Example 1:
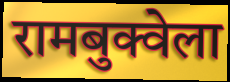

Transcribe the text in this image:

रामबुक्वेला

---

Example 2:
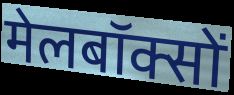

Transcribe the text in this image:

मेलबॉक्सों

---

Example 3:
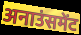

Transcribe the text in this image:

अनाउंसमेंट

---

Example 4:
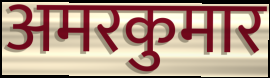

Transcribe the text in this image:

अमरकुमार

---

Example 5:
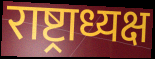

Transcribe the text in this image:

राष्ट्राध्यक्ष